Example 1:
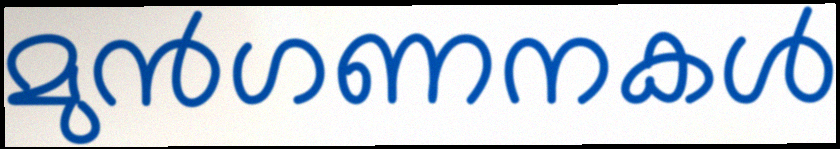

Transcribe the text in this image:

മുൻഗണനകൾ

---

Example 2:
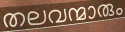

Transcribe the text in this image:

തലവന്മാരും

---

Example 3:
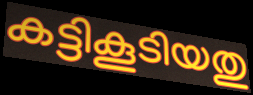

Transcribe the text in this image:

കട്ടികൂടിയതു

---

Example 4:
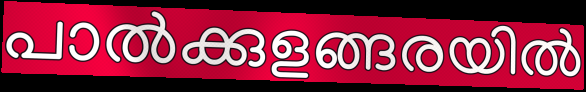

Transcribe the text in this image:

പാൽക്കുളങ്ങരയിൽ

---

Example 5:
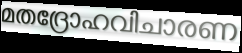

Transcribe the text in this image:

മതദ്രോഹവിചാരണ